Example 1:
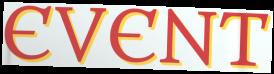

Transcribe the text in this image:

EVENT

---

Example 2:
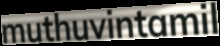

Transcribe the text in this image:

muthuvintamil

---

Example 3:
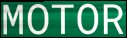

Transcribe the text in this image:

MOTOR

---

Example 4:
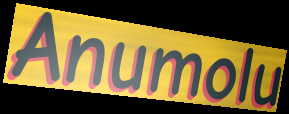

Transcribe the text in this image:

Anumolu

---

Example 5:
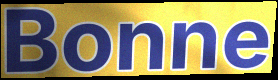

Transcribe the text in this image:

Bonne